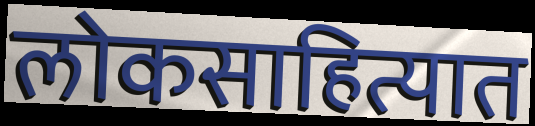
लोकसाहित्यात